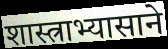
शास्त्राभ्यासाने